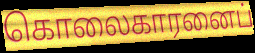
கொலைகாரனைப்